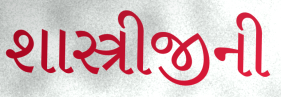
શાસ્ત્રીજીની